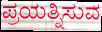
ಪ್ರಯತ್ನಿಸುವ